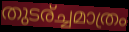
തുടര്ച്ചമാത്രം